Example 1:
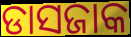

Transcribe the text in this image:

ଡାସଜାକ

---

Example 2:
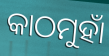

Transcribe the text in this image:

କାଠମୁହାଁ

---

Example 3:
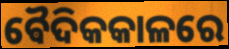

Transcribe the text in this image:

ଵୈଦିକକାଳରେ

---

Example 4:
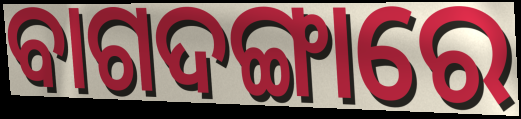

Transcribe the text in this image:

ବାଗଦଙ୍ଗାରେ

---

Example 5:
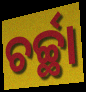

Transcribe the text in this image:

ଚର୍ଚ୍ଛା